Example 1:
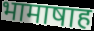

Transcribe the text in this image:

भामाषाह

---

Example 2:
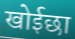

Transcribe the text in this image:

खोईछा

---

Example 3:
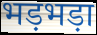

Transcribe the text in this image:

भड़भड़ा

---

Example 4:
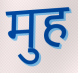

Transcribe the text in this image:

मुह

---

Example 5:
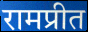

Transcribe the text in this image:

रामप्रीत